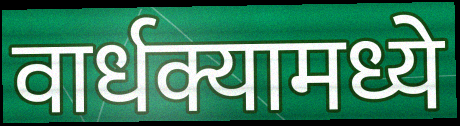
वार्धक्यामध्ये